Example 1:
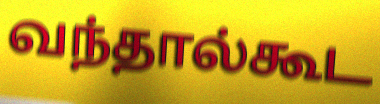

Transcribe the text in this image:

வந்தால்கூட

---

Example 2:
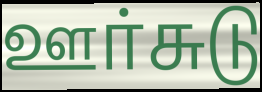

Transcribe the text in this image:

ஊர்சுடு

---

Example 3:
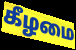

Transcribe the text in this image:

கீழமை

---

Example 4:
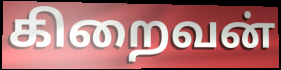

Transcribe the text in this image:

கிறைவன்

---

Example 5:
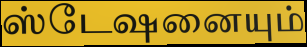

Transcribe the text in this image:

ஸ்டேஷனையும்